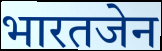
भारतजेन